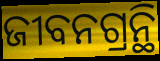
ଜୀବନଗ୍ରନ୍ଥି